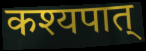
कश्यपात्